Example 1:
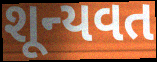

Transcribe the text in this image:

શૂન્યવત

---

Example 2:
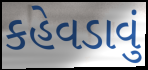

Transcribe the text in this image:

કહેવડાવું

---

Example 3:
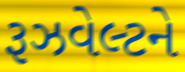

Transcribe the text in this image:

રૂઝવેલ્ટને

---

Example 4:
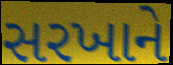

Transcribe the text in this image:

સરખાને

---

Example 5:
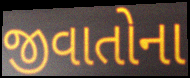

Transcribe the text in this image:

જીવાતોના